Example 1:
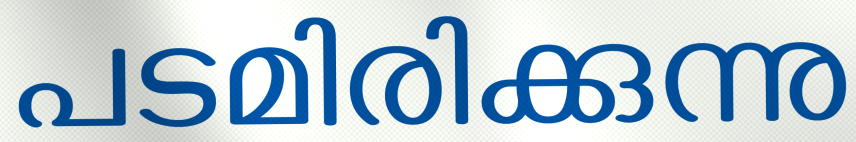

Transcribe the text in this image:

പടമിരിക്കുന്നു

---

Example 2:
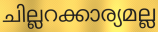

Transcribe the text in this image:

ചില്ലറക്കാര്യമല്ല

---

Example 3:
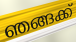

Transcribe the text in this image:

ഞങ്ങക്ക്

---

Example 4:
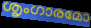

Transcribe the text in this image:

ശൃംഗാരമോ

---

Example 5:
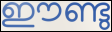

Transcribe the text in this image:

ഈണ്ടു